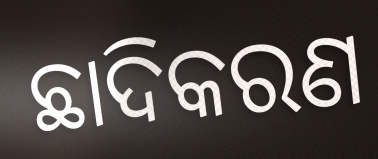
ଛାଦିକରଣ